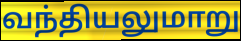
வந்தியலுமாறு